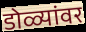
डोळ्यांवर